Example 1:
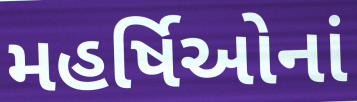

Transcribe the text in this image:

મહર્ષિઓનાં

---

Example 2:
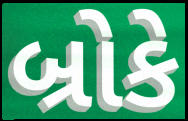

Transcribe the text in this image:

બ્રોકે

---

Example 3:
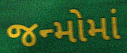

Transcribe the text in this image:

જન્મોમાં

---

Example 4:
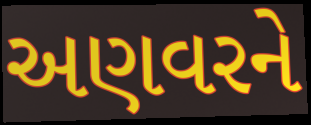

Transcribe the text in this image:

અણવરને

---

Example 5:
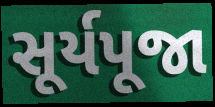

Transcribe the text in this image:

સૂર્યપૂજા